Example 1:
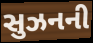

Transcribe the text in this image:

સુઝનની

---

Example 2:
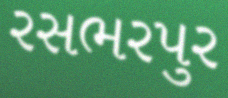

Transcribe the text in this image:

રસભરપુર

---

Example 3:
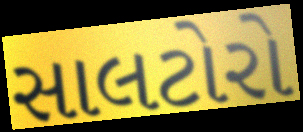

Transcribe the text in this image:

સાલટોરો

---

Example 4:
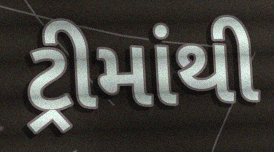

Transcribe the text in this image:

ટ્રીમાંથી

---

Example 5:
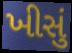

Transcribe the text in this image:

ખીસું